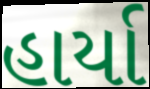
હાર્યા